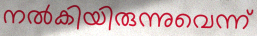
നൽകിയിരുന്നുവെന്ന്